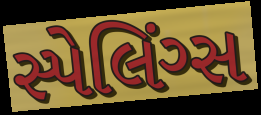
સ્પેલિંગ્સ